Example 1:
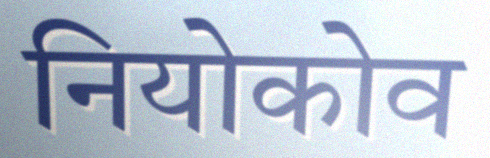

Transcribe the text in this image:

नियोकोव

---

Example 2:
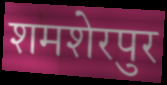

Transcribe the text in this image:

शमशेरपुर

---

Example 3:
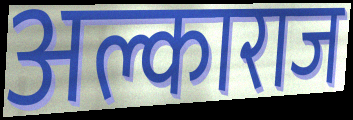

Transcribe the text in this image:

अल्काराज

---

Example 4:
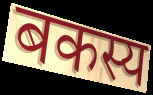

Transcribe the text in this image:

बकस्य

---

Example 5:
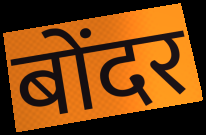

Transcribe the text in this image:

बोंदर